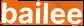
bailee